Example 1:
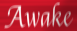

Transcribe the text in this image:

Awake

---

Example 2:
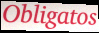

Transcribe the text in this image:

Obligatos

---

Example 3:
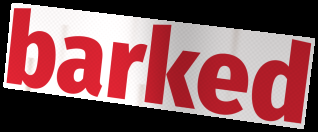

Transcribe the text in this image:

barked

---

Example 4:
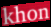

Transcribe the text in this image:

khon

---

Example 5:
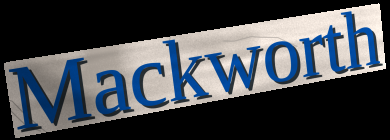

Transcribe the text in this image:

Mackworth